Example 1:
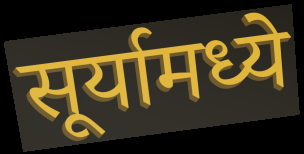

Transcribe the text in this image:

सूर्यामध्ये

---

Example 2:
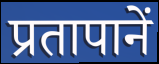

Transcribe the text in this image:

प्रतापानें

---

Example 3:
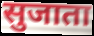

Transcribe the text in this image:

सुजाता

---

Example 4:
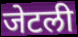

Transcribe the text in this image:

जेटली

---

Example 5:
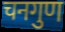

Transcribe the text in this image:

चनगुण